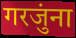
गरजुंना